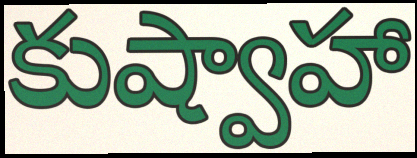
కుష్వాహా